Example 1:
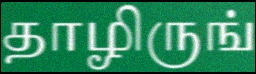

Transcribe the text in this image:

தாழிருங்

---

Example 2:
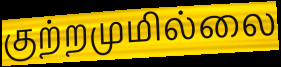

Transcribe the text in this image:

குற்றமுமில்லை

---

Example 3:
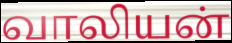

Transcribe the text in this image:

வாலியன்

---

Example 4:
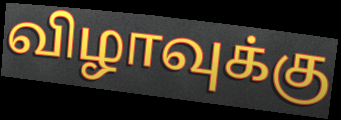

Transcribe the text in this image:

விழாவுக்கு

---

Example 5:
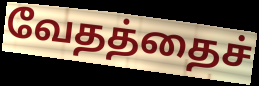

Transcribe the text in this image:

வேதத்தைச்